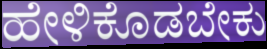
ಹೇಳಿಕೊಡಬೇಕು